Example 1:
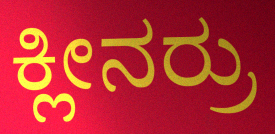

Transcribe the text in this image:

ಕ್ಲೀನರ್ರು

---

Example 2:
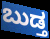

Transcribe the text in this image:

ಬುಡ್ತ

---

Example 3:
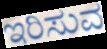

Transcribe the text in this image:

ಇರಿಸುವ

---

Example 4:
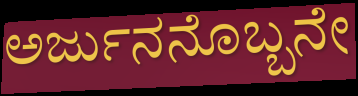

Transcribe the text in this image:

ಅರ್ಜುನನೊಬ್ಬನೇ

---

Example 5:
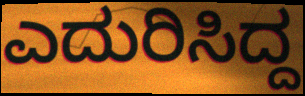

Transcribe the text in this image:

ಎದುರಿಸಿದ್ದ